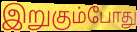
இறுகும்போது